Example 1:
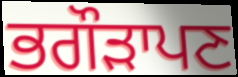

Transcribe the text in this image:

ਭਗੌੜਾਪਣ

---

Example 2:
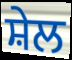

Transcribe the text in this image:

ਸ਼ੇਲ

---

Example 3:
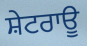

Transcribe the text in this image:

ਸ਼ੇਟਰਾਊ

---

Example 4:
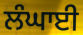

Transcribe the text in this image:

ਲੰਘਾਈ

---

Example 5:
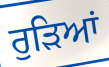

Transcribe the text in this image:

ਰੁੜਿਆਂ